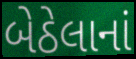
બેઠેલાનાં